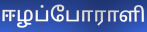
ஈழப்போராளி